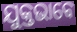
ଯୁକ୍ତଭାବେ